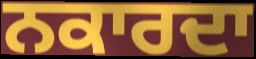
ਨਕਾਰਦਾ